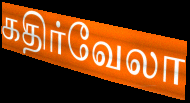
கதிர்வேலா